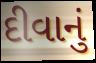
દીવાનું